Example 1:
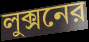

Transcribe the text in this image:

লুক্সনের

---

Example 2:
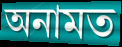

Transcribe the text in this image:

অনামত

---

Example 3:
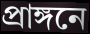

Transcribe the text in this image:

প্রাঙ্গনে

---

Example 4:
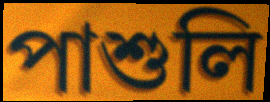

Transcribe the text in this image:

পাশুলি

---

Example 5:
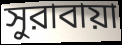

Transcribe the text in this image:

সুরাবায়া